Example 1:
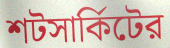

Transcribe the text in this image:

শটসার্কিটের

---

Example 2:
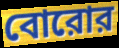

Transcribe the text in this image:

বোরোর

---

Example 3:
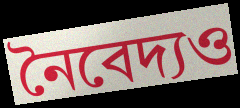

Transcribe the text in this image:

নৈবেদ্যও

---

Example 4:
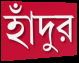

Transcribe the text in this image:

হাঁদুর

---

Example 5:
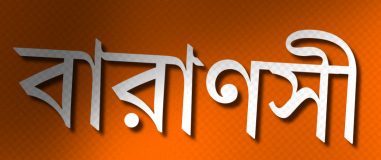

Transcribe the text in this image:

বারাণসী